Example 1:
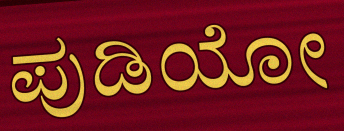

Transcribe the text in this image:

ಪುಡಿಯೋ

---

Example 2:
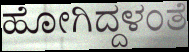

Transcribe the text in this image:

ಹೋಗಿದ್ದಳಂತೆ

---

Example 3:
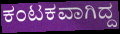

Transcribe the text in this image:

ಕಂಟಕವಾಗಿದ್ದ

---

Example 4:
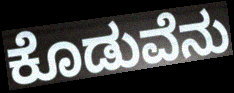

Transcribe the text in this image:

ಕೊಡುವೆನು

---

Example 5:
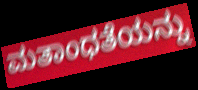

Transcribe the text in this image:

ಮತಾಂಧತೆಯನ್ನು